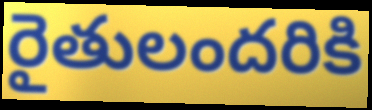
రైతులందరికి